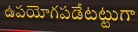
ఉపయోగపడేటట్టుగా